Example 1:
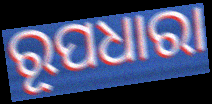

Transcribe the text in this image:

ରୂପଧାରା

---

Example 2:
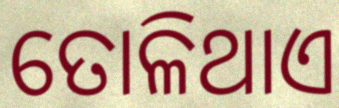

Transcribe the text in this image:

ତୋଳିଥାଏ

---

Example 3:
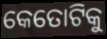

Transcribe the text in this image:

କେତୋଟିକୁ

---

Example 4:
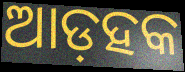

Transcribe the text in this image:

ଆଡ଼ହକ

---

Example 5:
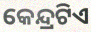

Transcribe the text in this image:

କେନ୍ଦ୍ରଟିଏ